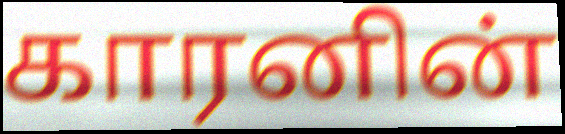
காரனின்